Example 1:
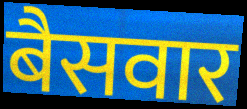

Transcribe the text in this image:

बैसवार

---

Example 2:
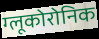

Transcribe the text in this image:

ग्लूकोरोनिक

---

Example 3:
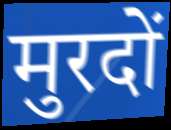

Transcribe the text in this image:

मुरदों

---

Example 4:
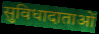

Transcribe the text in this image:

सुविधादाताओं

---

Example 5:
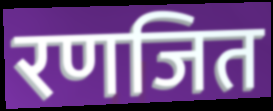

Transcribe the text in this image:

रणजित